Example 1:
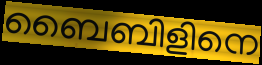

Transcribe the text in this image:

ബൈബിളിനെ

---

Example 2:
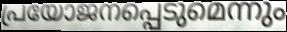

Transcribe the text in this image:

പ്രയോജനപ്പെടുമെന്നും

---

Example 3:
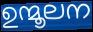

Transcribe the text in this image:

ഉന്മൂലന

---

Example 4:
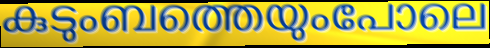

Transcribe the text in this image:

കുടുംബത്തെയുംപോലെ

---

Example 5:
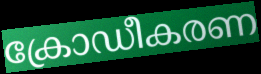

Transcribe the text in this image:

ക്രോഡീകരണ